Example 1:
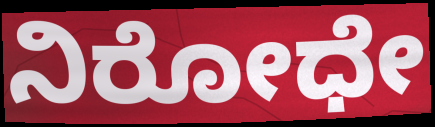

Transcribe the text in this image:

ನಿರೋಧೇ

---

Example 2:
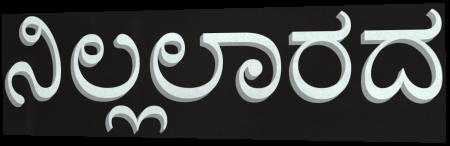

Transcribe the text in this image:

ನಿಲ್ಲಲಾರದ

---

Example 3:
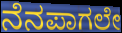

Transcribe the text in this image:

ನೆನಪಾಗಲೇ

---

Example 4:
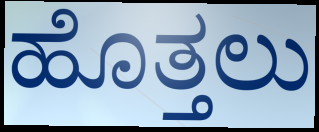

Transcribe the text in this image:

ಹೊತ್ತಲು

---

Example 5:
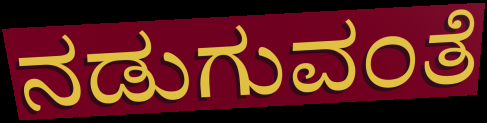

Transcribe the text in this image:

ನಡುಗುವಂತೆ